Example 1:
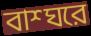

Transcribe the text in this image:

বাশ্ঘরে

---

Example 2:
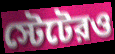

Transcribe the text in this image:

স্টেটেরও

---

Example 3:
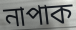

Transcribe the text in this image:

নাপাক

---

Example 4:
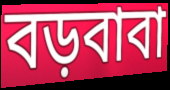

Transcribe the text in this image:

বড়বাবা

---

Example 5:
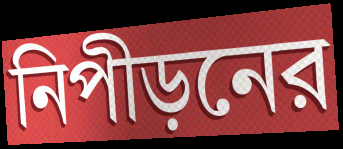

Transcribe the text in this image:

নিপীড়নের